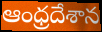
ఆంధ్రదేశాన